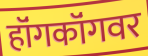
हॉंगकॉंगवर